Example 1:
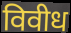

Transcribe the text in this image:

विवीध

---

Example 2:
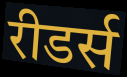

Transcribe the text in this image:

रीडर्स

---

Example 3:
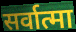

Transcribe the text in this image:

सर्वात्मा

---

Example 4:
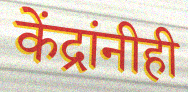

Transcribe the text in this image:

केंद्रांनीही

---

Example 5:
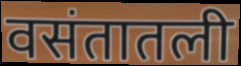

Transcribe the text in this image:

वसंतातली